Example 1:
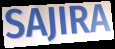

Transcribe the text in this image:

SAJIRA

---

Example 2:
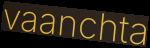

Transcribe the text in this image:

vaanchta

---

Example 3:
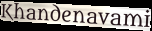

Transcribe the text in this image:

Khandenavami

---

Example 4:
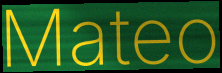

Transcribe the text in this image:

Mateo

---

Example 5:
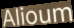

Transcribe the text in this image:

Alioum